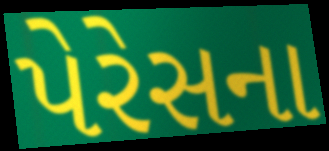
પેરેસના